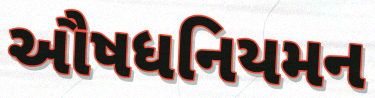
ઔષધનિયમન